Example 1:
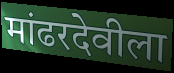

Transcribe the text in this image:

मांढरदेवीला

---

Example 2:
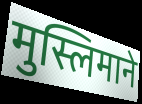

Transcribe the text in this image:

मुस्लिमाने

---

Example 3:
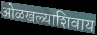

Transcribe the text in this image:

ओळखल्याशिवाय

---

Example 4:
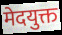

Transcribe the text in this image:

मेदयुक्त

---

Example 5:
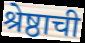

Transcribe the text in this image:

श्रेष्ठाची